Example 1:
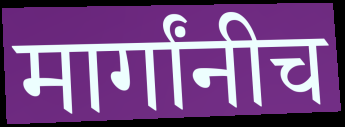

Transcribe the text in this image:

मार्गांनीच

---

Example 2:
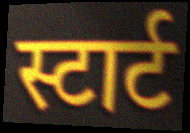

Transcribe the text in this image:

स्टार्ट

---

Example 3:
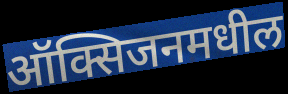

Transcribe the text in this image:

ऑक्सिजनमधील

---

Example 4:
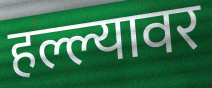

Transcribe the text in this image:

हल्ल्यावर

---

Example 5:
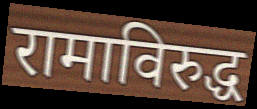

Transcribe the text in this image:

रामाविरुद्ध